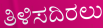
ತಿಳಿಸದಿರಲು